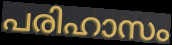
പരിഹാസം